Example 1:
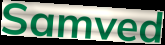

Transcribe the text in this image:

Samved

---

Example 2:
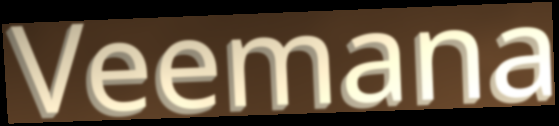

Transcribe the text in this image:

Veemana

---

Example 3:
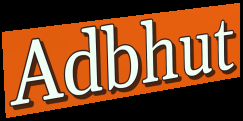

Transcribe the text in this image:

Adbhut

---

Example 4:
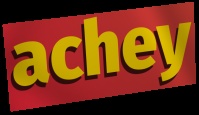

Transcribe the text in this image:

achey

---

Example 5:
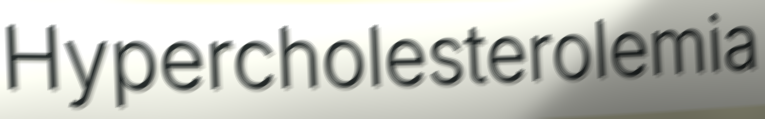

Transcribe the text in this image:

Hypercholesterolemia